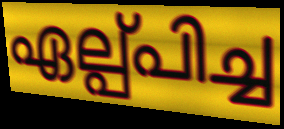
ഏല്പ്പിച്ച